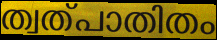
ത്വത്പാതിതം